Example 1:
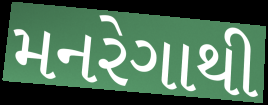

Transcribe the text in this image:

મનરેગાથી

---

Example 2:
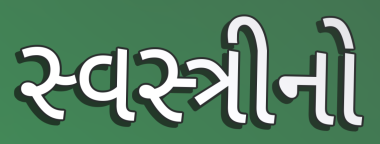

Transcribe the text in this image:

સ્વસ્ત્રીનો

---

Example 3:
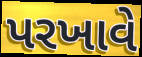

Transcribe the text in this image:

પરખાવે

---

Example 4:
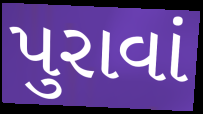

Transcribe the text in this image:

પુરાવાં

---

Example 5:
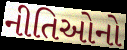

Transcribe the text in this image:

નીતિઓનો